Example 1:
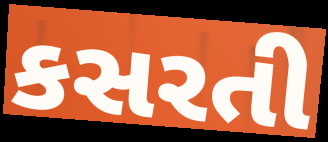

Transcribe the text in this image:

કસરતી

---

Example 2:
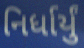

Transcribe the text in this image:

નિર્ધાર્યું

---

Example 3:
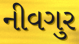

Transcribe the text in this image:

નીવગુર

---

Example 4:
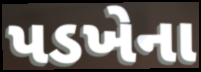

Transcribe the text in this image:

પડખેના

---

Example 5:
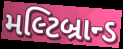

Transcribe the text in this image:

મલ્ટિબ્રાન્ડ